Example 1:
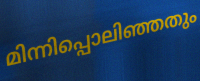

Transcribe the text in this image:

മിന്നിപ്പൊലിഞ്ഞതും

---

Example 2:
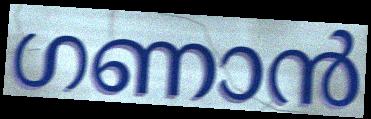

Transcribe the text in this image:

ഗണാൻ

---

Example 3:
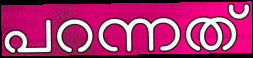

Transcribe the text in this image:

പറന്നത്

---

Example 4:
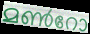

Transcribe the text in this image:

മൺറോ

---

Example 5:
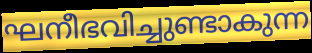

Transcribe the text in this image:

ഘനീഭവിച്ചുണ്ടാകുന്ന